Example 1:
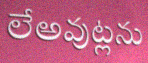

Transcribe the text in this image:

లేఅవుట్లను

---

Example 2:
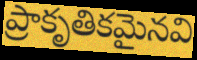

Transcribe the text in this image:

ప్రాకృతికమైనవి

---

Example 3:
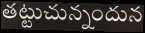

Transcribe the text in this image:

తట్టుచున్నందున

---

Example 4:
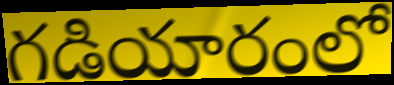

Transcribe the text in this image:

గడియారంలో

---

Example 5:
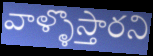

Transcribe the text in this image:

వాళ్ళొస్తారని